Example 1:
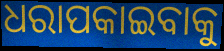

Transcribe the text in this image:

ଧରାପକାଇବାକୁ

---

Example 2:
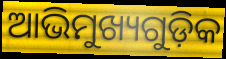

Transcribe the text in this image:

ଆଭିମୁଖ୍ୟଗୁଡ଼ିକ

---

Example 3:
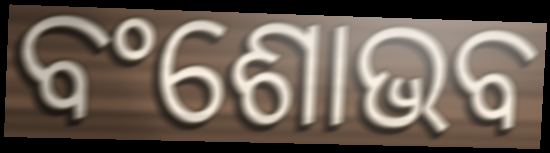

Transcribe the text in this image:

ବଂଶୋଭବ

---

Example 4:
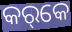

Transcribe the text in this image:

କର୍‌କେ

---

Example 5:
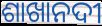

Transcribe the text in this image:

ଶାଖାନଦୀ